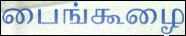
பைங்கூழை